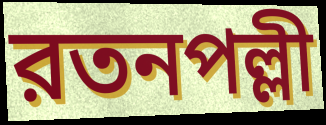
রতনপল্লী